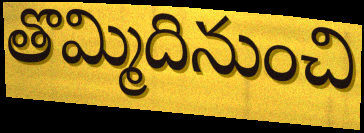
తొమ్మిదినుంచి